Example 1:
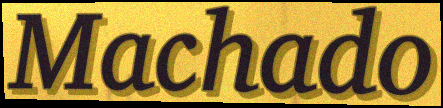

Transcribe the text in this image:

Machado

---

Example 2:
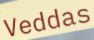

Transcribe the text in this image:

Veddas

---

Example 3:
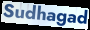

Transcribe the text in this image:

Sudhagad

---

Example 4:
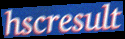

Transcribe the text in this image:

hscresult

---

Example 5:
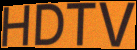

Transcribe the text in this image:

HDTV